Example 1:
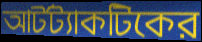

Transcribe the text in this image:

আর্টট্যাকটিকের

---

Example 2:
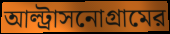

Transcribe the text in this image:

আল্ট্রাসনোগ্রামের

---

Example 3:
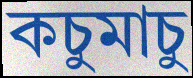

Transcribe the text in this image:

কচুমাচু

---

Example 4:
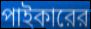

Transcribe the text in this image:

পাইকারের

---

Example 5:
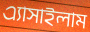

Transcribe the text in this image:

এ্যাসাইলাম